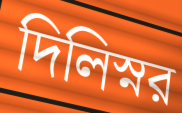
দিলিস্নর